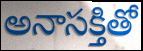
అనాసక్తితో